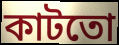
কাটতো